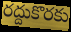
రద్దుకొరకు